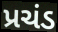
પ્રચંડ